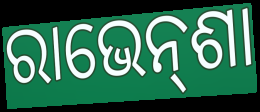
ରାଭେନ୍‌ଶା